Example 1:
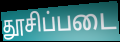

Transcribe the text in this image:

தூசிப்படை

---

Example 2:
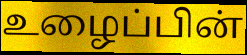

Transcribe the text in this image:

உழைப்பின்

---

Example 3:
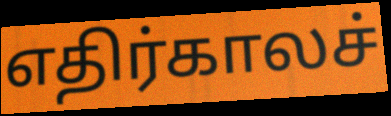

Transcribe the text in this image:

எதிர்காலச்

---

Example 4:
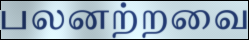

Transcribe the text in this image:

பலனற்றவை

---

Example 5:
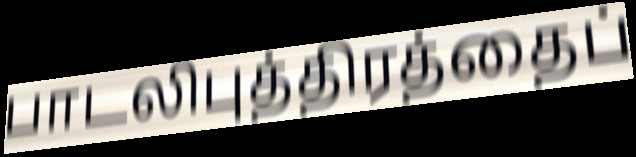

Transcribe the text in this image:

பாடலிபுத்திரத்தைப்